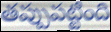
తప్పుపట్టింది